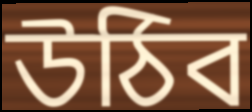
উঠিব